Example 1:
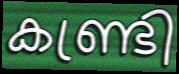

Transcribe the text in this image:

കണ്ട്രി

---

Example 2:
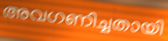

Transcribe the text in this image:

അവഗണിച്ചതായി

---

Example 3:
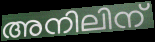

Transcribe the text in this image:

അനിലിന്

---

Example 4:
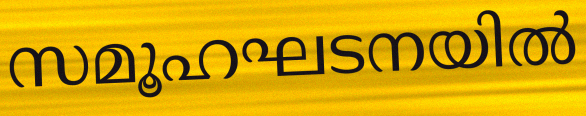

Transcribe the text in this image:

സമൂഹഘടനയിൽ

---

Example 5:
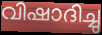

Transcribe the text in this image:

വിഷാദിച്ചു